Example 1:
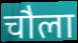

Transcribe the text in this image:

चौला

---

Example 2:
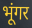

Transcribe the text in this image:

भूंगर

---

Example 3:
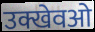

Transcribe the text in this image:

उक्खेवओ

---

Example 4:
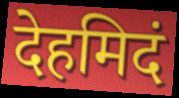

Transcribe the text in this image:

देहमिदं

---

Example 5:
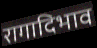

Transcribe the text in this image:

रागादिभाव